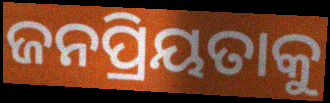
ଜନପ୍ରିୟତାକୁ